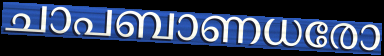
ചാപബാണധരോ